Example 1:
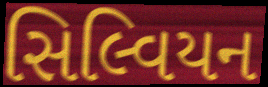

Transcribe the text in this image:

સિલ્વિયન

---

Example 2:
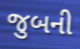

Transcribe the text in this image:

જુબની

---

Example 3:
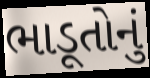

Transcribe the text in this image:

ભાડૂતોનું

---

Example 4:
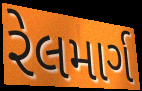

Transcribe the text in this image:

રેલમાર્ગ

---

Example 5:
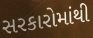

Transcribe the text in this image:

સરકારોમાંથી